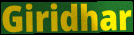
Giridhar